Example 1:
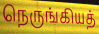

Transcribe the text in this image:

நெருங்கியத்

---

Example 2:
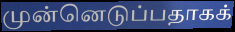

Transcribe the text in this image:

முன்னெடுப்பதாகக்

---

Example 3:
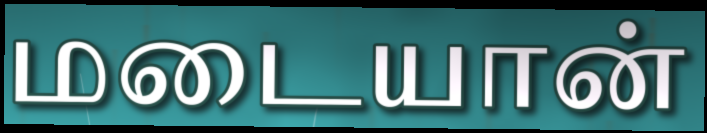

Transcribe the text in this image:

மடையான்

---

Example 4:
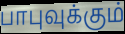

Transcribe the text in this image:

பாபுவுக்கும்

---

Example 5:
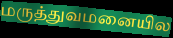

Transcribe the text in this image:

மருத்துவமனையில